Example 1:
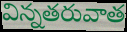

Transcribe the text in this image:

విన్నతరువాత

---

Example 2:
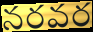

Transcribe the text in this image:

నరవర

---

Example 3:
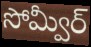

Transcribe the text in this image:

సోమ్వీర్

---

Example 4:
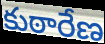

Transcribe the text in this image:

కుఠారేణ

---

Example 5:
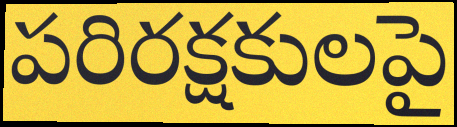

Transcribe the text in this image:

పరిరక్షకులపై